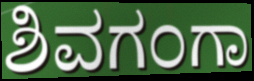
ಶಿವಗಂಗಾ